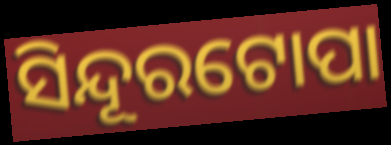
ସିନ୍ଦୂରଟୋପା